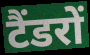
टैंडरों